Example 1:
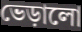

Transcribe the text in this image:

ভেড়ালো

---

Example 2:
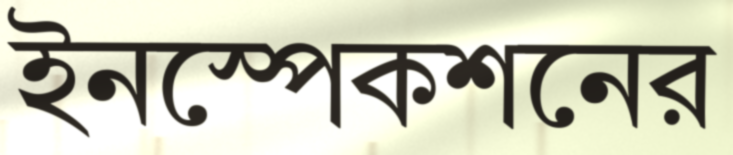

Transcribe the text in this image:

ইনস্পেকশনের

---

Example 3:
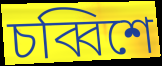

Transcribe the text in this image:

চব্বিশে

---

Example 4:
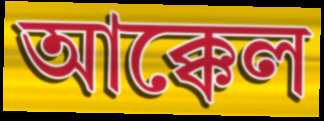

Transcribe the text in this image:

আক্কেল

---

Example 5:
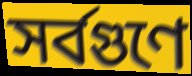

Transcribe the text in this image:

সর্বগুণে